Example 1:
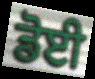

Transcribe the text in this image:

ਡੋਈ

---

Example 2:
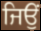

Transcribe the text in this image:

ਜਿਉਂ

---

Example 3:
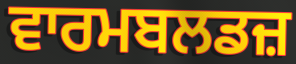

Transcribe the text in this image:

ਵਾਰਮਬਲਡਜ਼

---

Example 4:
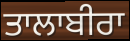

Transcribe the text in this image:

ਤਾਲਾਬੀਰਾ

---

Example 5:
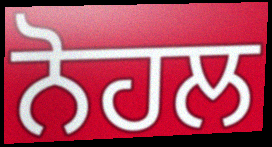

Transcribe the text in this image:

ਨੋਹਲ